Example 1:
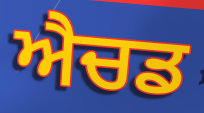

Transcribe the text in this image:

ਐਚਡ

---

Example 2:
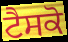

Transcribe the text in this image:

ਟੈਸਕੋ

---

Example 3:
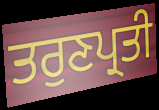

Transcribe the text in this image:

ਤਰੁਣਪ੍ਰਤੀ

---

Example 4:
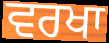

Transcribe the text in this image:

ਵਰਖਾ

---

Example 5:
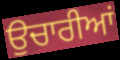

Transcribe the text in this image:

ਉਚਾਰੀਆਂ